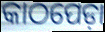
କାଠପେଡ଼ା